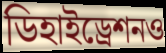
ডিহাইড্রেশনও